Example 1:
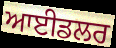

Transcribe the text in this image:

ਆਈਡਲਰ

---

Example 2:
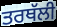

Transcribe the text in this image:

ਤਰਥੱਲੀ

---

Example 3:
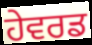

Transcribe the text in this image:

ਹੇਵਰਡ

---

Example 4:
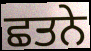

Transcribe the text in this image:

ਛਤਨੇ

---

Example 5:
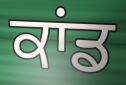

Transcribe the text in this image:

ਕਾਂਡ